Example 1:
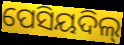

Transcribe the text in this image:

ପେସିୟଦିଲ୍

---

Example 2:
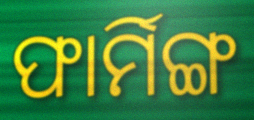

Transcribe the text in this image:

ଫାର୍ମିଙ୍ଗ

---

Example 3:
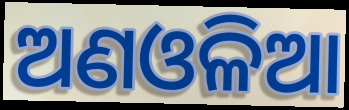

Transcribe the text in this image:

ଅଣଓଳିଆ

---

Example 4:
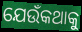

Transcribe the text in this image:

ଯେଉଁକଥାକୁ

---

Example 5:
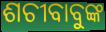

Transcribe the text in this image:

ଶଚୀବାବୁଙ୍କ